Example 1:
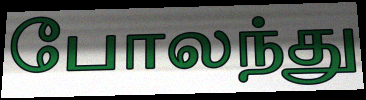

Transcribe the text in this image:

போலந்து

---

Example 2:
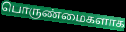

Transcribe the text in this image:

பொருண்மைகளாக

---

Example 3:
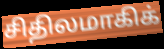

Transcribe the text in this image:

சிதிலமாகிக்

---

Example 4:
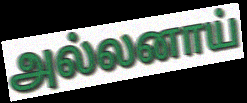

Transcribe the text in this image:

அல்லனாய்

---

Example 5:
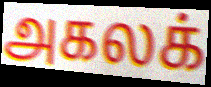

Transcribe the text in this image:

அகலக்